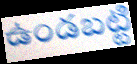
ఉండబట్టి